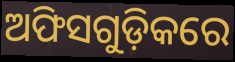
ଅଫିସଗୁଡ଼ିକରେ